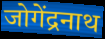
जोगेंद्रनाथ